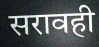
सरावही